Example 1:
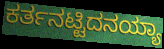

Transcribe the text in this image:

ಕರ್ತನಟ್ಟಿದನಯ್ಯಾ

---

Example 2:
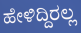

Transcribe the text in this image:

ಹೇಳಿದ್ದಿರಲ್ಲ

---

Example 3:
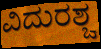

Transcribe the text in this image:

ವಿದುರಶ್ಚ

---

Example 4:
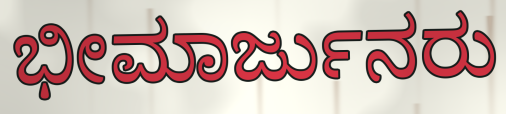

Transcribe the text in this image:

ಭೀಮಾರ್ಜುನರು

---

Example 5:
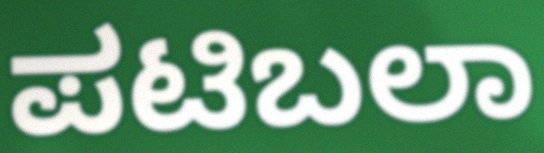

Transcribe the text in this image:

ಪಟಿಬಲಾ